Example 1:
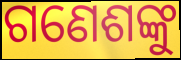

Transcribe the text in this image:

ଗଣେଶଙ୍କୁ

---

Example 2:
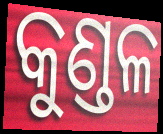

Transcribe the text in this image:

କୁଣ୍ଡଳ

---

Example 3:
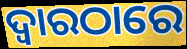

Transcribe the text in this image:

ଦ୍ୱାରଠାରେ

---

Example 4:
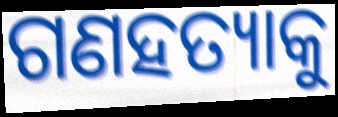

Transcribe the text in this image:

ଗଣହତ୍ୟାକୁ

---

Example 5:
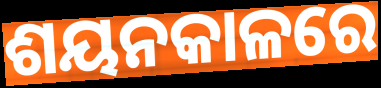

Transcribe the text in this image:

ଶୟନକାଳରେ